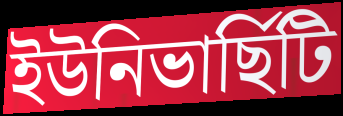
ইউনিভাৰ্ছিটি